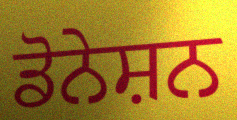
ਡੋਨੇਸ਼ਨ